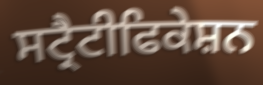
ਸਟ੍ਰੈਟੀਫਿਕੇਸ਼ਨ